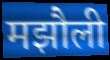
मझौली